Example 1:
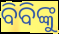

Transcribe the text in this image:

ବିବିଙ୍କୁ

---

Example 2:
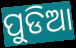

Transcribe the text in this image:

ପୁଡିଆ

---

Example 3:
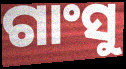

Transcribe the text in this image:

ଗାଂସୁ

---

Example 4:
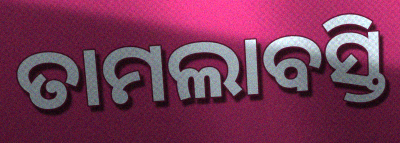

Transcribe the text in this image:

ତାମଲାବସ୍ତି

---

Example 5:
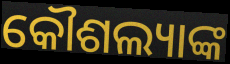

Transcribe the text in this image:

କୌଶଲ୍ୟାଙ୍କ